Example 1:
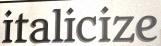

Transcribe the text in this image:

italicize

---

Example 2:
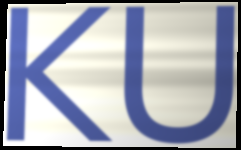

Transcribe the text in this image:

KU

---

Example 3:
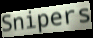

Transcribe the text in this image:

Snipers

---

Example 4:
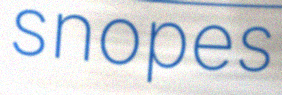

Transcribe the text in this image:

snopes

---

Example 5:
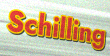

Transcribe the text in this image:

Schilling